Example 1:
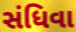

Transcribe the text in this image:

સંધિવા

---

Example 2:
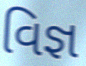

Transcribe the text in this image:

વિજ્ઞ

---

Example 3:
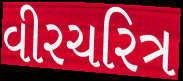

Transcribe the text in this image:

વીરચરિત્ર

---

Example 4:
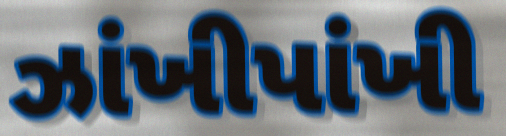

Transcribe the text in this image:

ઝાંખીપાંખી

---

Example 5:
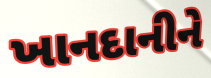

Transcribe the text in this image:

ખાનદાનીને